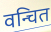
वन्चित